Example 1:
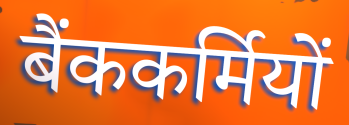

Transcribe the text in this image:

बैंककर्मियों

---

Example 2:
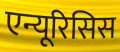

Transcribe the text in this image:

एन्यूरिसिस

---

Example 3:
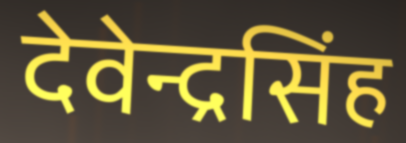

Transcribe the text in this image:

देवेन्द्रसिंह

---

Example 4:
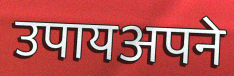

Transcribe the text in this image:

उपायअपने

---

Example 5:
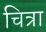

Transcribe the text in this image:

चित्रा